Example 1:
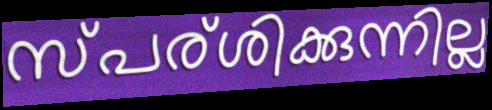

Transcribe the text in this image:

സ്പര്ശിക്കുന്നില്ല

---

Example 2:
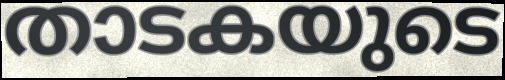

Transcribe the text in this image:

താടകയുടെ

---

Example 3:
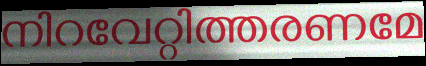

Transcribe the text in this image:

നിറവേറ്റിത്തരണമേ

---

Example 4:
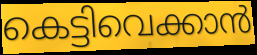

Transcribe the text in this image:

കെട്ടിവെക്കാൻ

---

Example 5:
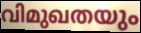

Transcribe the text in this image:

വിമുഖതയും